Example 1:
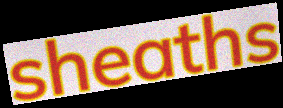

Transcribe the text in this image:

sheaths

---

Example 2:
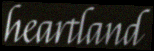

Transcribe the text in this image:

heartland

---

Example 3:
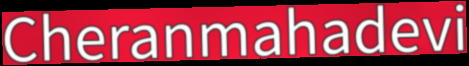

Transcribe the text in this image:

Cheranmahadevi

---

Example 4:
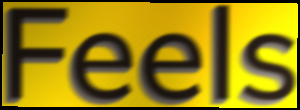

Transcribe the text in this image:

Feels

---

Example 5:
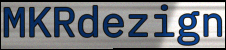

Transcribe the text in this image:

MKRdezign